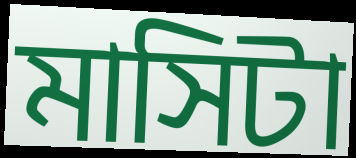
মাসিটা